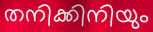
തനിക്കിനിയും